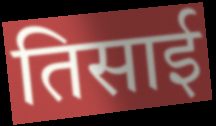
तिसाई